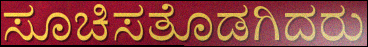
ಸೂಚಿಸತೊಡಗಿದರು